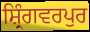
ਸ਼੍ਰਿੰਗਵਰਪੁਰ